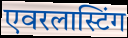
एवरलास्टिंग